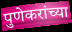
पुणेकरांच्या